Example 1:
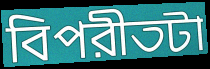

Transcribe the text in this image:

বিপরীতটা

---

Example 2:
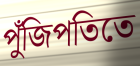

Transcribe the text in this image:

পুঁজিপতিতে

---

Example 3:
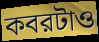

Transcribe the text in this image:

কবরটাও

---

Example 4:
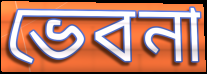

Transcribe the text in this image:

ভেবনা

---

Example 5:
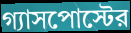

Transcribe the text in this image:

গ্যাসপোস্টের